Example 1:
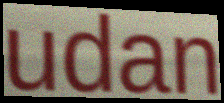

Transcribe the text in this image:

udan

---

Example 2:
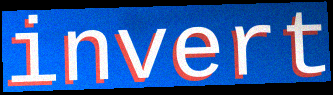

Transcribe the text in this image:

invert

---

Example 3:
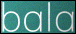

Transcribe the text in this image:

bala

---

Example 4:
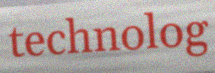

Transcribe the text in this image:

technolog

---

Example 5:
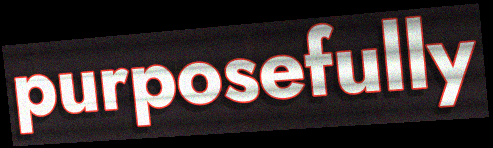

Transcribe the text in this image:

purposefully